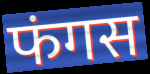
फंगस